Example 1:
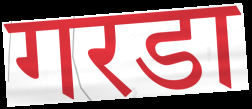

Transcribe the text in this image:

गरडा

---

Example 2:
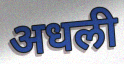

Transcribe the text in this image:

अधली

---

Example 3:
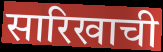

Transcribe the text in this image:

सारिखाची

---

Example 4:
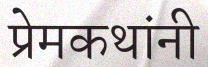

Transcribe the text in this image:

प्रेमकथांनी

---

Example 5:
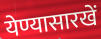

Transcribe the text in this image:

येण्यासारखें